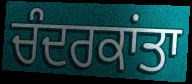
ਚੰਦਰਕਾਂਤਾ